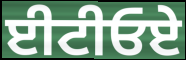
ਈਟੀਓਏ